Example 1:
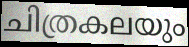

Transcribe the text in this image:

ചിത്രകലയും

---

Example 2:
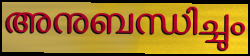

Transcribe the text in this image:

അനുബന്ധിച്ചും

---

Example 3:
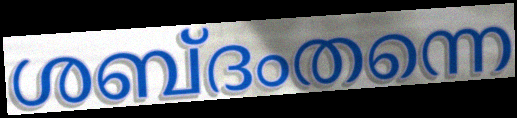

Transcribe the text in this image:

ശബ്ദംതന്നെ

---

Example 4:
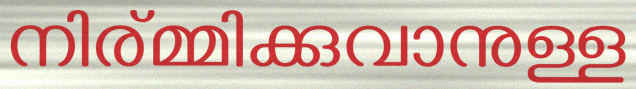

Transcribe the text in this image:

നിര്മ്മിക്കുവാനുള്ള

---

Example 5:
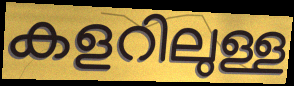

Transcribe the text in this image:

കളറിലുള്ള